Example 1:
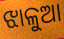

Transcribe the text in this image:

ଝାଳୁଆ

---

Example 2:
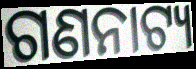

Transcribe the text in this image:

ଗଣନାଟ୍ୟ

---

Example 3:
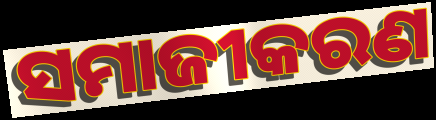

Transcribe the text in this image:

ସମାଜୀକରଣ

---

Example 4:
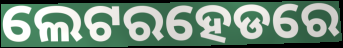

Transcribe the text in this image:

ଲେଟରହେଡରେ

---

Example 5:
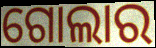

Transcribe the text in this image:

ଗୋଲାର